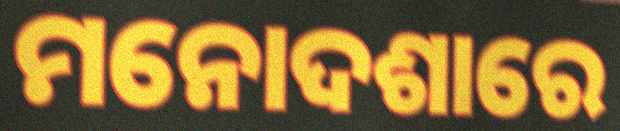
ମନୋଦଶାରେ